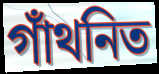
গাঁথনিত